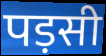
पड़सी